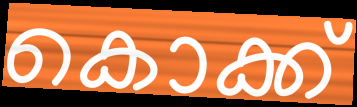
കൊക്ക്